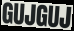
GUJGUJ